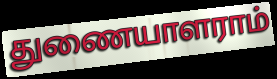
துணையாளராம்